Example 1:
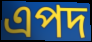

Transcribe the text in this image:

এপদ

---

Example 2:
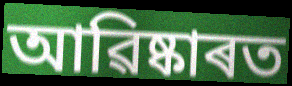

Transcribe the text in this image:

আৱিষ্কাৰত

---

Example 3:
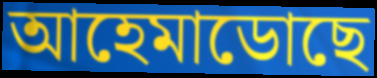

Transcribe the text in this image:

আহেমাডোছে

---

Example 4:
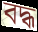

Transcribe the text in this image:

বদ্ধ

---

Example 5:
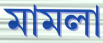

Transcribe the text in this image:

মামলা